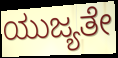
ಯುಜ್ಯತೇ